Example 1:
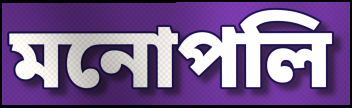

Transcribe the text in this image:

মনোপলি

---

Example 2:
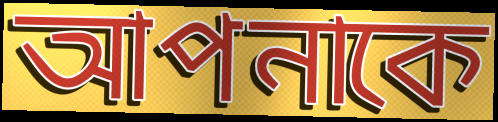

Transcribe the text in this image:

আপনাকে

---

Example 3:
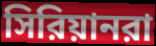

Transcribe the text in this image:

সিরিয়ানরা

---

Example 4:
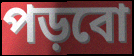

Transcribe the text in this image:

পড়বো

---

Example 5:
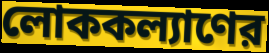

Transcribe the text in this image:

লোককল্যাণের